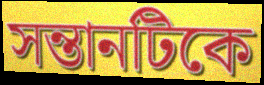
সন্তানটিকে